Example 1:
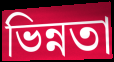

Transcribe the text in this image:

ভিন্নতা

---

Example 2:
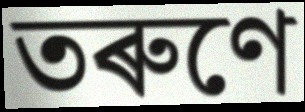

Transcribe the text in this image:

তৰুণে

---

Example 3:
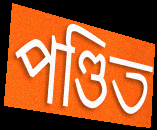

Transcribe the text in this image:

পণ্ডিত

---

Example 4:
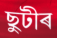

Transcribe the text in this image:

ছুটীৰ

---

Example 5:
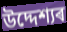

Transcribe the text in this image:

উদ্দেশ্যৰ